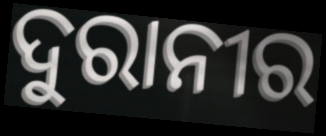
ଦୁରାନୀର